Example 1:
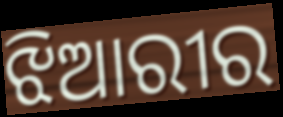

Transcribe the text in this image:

ଝିଆରୀର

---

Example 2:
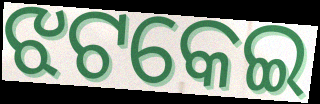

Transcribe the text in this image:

ଝଟକେଇ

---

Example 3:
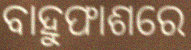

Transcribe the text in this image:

ବାହୁଫାଶରେ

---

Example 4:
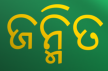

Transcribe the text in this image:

ଜନ୍ମିତ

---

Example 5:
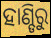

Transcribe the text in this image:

ହାଣ୍ଡିରୁ